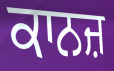
ਕਾਨਜ਼